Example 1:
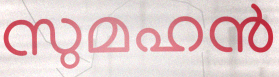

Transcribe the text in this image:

സുമഹൻ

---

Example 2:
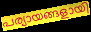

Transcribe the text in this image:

പര്യായങ്ങളായി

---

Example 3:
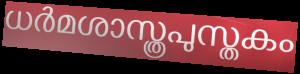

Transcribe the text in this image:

ധർമശാസ്ത്രപുസ്തകം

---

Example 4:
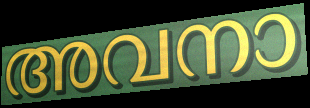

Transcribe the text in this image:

അവനാ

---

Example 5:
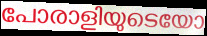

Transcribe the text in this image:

പോരാളിയുടെയോ